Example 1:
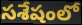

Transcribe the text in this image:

సశేషంలో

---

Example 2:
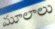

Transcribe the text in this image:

మూలాలు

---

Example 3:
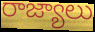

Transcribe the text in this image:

రాజ్యాలు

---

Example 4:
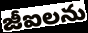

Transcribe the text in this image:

జీఐలను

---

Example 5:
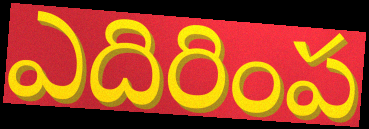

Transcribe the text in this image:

ఎదిరింప